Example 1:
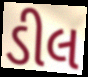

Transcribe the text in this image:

ડીલ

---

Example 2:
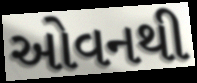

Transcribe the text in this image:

ઓવનથી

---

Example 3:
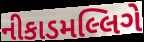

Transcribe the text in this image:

નીકાડમલ્લિગે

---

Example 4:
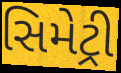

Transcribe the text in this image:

સિમેટ્રી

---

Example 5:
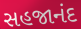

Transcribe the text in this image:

સહજાનંદ